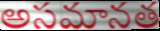
అసమానత